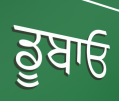
ਡੂਬਾਓ